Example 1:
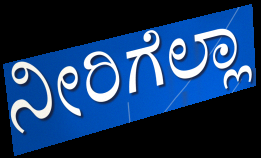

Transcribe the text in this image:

ನೀರಿಗೆಲ್ಲಾ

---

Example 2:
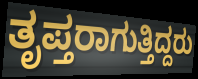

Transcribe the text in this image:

ತೃಪ್ತರಾಗುತ್ತಿದ್ದರು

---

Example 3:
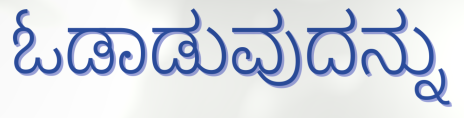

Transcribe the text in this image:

ಓಡಾಡುವುದನ್ನು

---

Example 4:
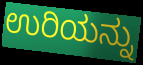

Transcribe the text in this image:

ಉರಿಯನ್ನು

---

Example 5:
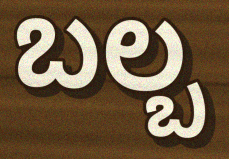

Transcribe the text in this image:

ಬಲ್ಬ